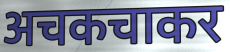
अचकचाकर